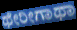
ಥೇರೀಗಾಥಾ